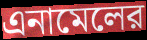
এনামেলের